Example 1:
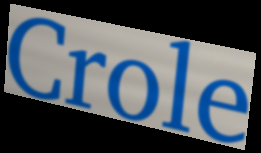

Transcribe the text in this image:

Crole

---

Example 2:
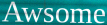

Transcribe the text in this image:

Awsome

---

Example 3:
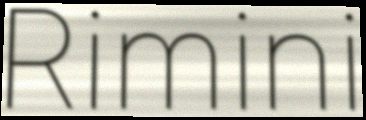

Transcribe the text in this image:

Rimini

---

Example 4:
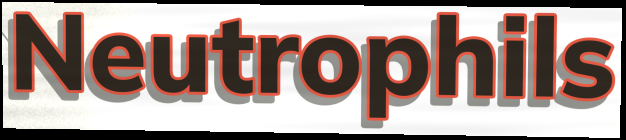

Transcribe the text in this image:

Neutrophils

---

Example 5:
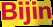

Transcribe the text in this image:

Bijin